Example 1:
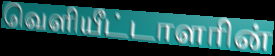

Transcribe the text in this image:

வெளியீட்டாளரின்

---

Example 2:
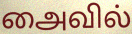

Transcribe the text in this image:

அைவில்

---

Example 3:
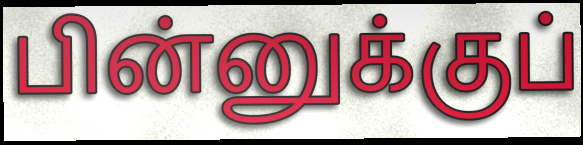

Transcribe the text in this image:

பின்னுக்குப்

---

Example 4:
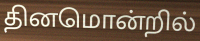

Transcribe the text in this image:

தினமொன்றில்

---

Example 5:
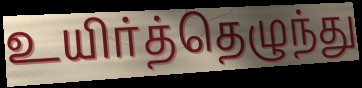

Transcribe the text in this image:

உயிர்த்தெழுந்து